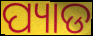
ପ୍ୟାଡ